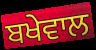
ਬਖੇਵਾਲ